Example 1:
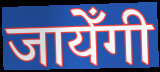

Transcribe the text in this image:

जायेँगी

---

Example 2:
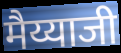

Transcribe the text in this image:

मैय्याजी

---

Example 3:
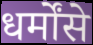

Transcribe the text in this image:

धर्मोंसे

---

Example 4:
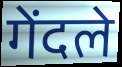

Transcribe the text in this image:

गेंदले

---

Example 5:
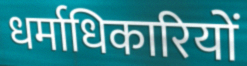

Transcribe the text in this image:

धर्माधिकारियों